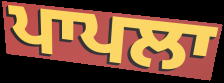
ਪਾਪਲਾ